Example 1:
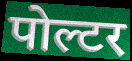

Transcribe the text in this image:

पोल्टर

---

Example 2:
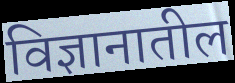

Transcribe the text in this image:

विज्ञानातील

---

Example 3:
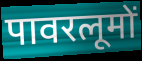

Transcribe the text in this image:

पावरलूमों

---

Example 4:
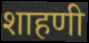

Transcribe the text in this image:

शाहणी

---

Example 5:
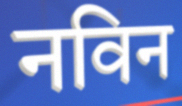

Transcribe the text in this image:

नविन